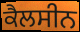
ਕੈਲਸੀਨ